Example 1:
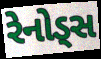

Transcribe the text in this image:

રેનોડ્સ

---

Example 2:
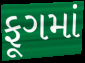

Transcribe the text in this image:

ફૂગમાં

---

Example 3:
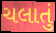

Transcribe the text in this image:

ચલાતું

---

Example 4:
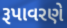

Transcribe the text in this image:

રૂપાવરણે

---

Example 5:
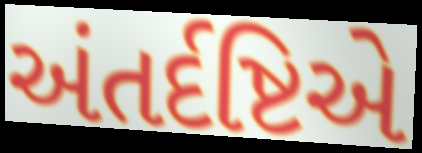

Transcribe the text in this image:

અંતર્દષ્ટિએ